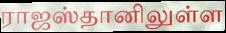
ராஜஸ்தானிலுள்ள